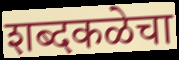
शब्दकळेचा